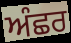
ਅੰਛਰ